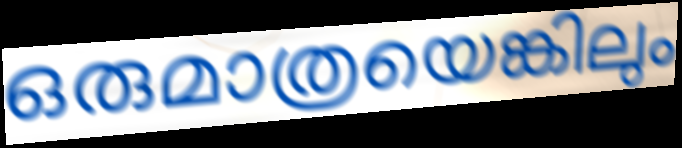
ഒരുമാത്രയെങ്കിലും